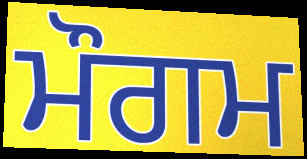
ਮੌਗਮ